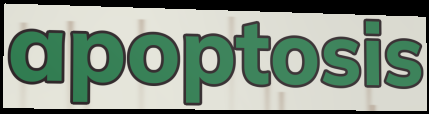
apoptosis